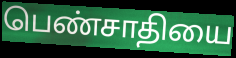
பெண்சாதியை